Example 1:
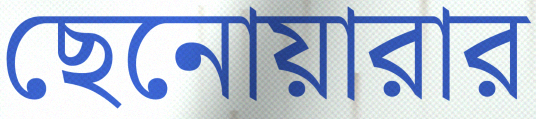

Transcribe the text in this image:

ছেনোয়ারার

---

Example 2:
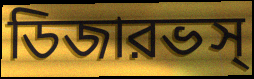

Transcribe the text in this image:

ডিজারভস্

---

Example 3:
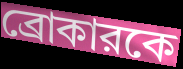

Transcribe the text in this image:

ব্রোকারকে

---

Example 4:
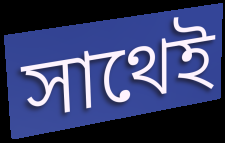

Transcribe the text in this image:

সাথেই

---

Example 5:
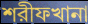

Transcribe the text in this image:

শরীফখানা